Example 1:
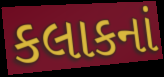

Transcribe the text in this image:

કલાકનાં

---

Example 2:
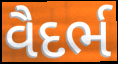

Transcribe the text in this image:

વૈદર્ભ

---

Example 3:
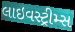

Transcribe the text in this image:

લાઇવસ્ટ્રીમ્સ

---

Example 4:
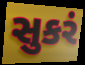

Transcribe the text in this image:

સુકરં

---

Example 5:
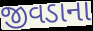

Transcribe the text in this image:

જીવડાના